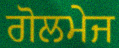
ਗੋਲਮੇਜ